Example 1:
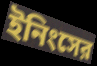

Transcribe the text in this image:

ইনিংসের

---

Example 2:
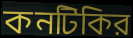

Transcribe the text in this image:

কনটিকির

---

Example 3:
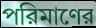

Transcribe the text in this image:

পরিমাণের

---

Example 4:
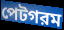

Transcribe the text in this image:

পেটগরম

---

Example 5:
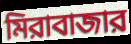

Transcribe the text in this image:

মিরাবাজার